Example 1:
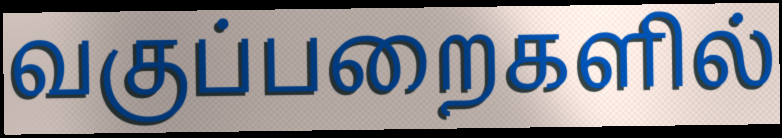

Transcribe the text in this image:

வகுப்பறைகளில்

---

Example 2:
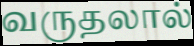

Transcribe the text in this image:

வருதலால்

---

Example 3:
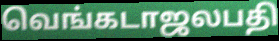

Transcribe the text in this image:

வெங்கடாஜலபதி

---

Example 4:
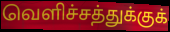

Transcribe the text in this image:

வெளிச்சத்துக்குக்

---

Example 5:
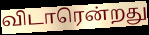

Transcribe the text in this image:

விடாரென்றது